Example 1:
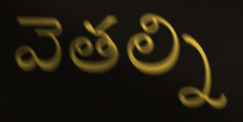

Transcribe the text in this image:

వెతల్ని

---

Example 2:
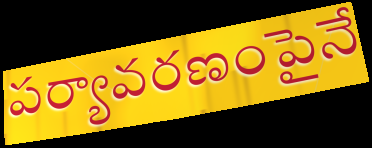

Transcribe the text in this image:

పర్యావరణంపైనే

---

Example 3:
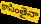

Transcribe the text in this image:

కాసింతైనా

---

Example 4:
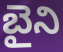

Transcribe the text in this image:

బైని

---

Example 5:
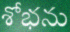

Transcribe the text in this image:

శోభను